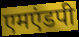
एमएंडपी